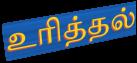
உரித்தல்